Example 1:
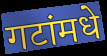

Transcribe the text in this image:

गटांमधे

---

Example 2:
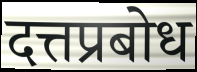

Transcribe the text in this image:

दत्तप्रबोध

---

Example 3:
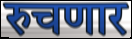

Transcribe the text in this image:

रुचणार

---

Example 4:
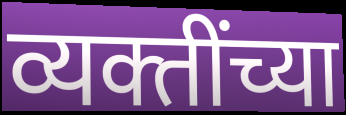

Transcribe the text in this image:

व्‍यक्‍तींच्‍या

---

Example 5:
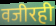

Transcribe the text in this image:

वजीरही